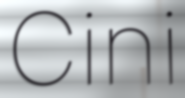
Cini